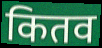
कितव